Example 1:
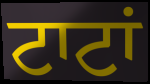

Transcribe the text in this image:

ਟਾਟਾਂ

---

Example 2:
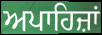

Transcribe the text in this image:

ਅਪਾਹਿਜ਼ਾਂ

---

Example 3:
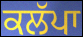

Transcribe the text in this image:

ਕਲੱਪਾ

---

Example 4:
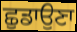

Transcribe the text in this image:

ਛੁਡਾਉਣਾ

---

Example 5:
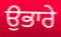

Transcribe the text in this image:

ਉਭਾਰੇ